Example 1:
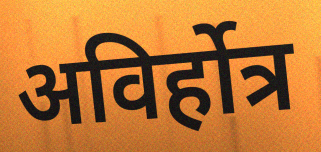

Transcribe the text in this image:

अविर्होत्र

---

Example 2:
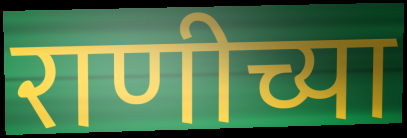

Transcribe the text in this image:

राणीच्या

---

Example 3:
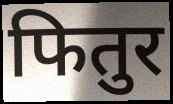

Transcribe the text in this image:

फितुर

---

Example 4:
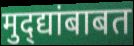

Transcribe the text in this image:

मुद्द्यांबाबत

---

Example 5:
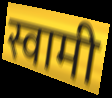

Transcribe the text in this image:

स्वामी